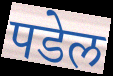
पडेल